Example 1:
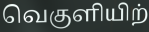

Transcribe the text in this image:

வெகுளியிற்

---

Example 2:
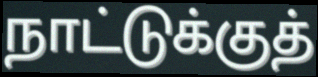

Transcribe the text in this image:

நாட்டுக்குத்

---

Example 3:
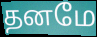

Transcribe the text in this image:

தனமே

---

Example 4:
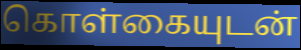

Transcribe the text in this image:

கொள்கையுடன்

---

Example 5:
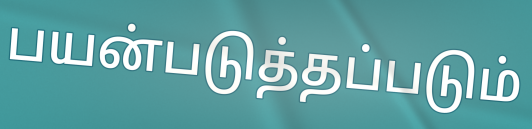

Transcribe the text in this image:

பயன்படுத்தப்படும்